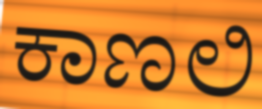
ಕಾಣಲಿ